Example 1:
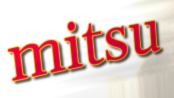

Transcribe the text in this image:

mitsu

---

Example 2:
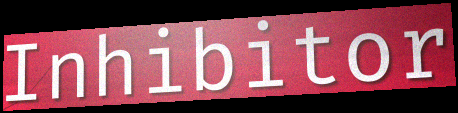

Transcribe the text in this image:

Inhibitor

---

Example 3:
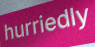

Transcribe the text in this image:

hurriedly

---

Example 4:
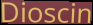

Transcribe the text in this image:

Dioscin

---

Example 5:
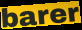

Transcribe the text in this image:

barer